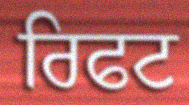
ਰਿਫਟ